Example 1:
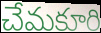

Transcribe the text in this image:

చేమకూరి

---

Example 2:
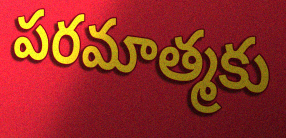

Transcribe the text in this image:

పరమాత్మకు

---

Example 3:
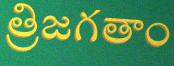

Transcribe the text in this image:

త్రిజగతాం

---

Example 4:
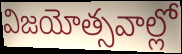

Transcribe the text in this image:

విజయోత్సవాల్లో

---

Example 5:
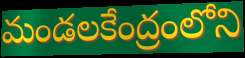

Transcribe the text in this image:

మండలకేంద్రంలోని